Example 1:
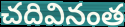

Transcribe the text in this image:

చదివినంత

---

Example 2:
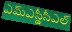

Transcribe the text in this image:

ఎమ్ఎస్డీసీఎల్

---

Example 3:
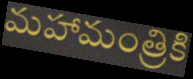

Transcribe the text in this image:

మహామంత్రికి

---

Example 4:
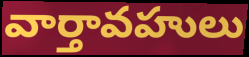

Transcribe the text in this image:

వార్తావహులు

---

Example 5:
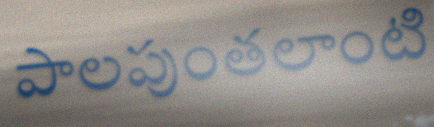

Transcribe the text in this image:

పాలపుంతలాంటి